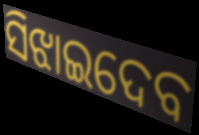
ସିଝାଇଦେବ